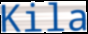
Kila